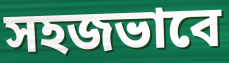
সহজভাবে